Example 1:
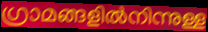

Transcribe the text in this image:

ഗ്രാമങ്ങളിൽനിന്നുള്ള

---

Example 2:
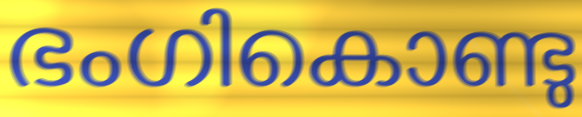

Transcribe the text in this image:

ഭംഗികൊണ്ടു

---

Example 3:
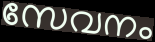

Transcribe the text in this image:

സേവനം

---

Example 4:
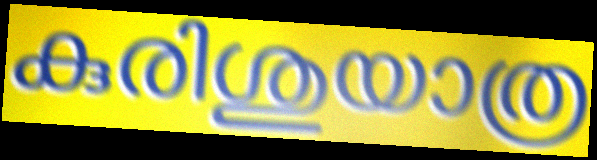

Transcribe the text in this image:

കുരിശുയാത്ര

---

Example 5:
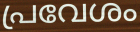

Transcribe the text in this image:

പ്രവേശം